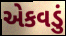
એકવડું